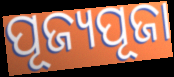
ପୂଜ୍ୟପୂଜା